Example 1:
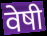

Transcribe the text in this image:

वेषी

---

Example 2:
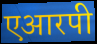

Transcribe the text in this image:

एआरपी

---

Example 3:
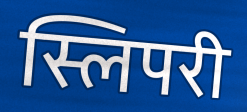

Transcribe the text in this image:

स्लिपरी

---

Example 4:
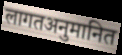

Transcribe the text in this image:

लागतअनुमानित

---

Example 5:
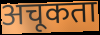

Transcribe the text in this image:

अचूकता